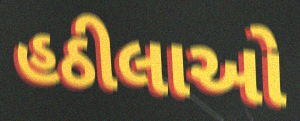
હઠીલાઓ